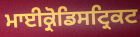
ਮਾਈਕ੍ਰੋਡਿਸਟ੍ਰਿਕਟ